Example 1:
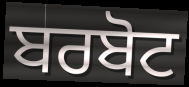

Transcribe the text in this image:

ਬਰਬੋਟ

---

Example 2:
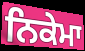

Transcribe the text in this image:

ਨਿਕੇਮਾ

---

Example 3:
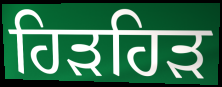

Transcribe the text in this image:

ਹਿੜਹਿੜ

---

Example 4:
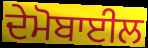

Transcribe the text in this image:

ਦੇਮੋਬਾਈਲ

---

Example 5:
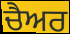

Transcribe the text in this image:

ਚੈਅਰ